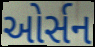
ઓર્સન